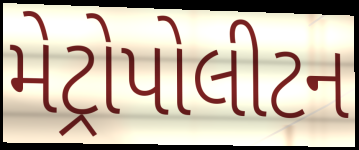
મેટ્રોપોલીટન